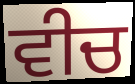
ਵੀਚ